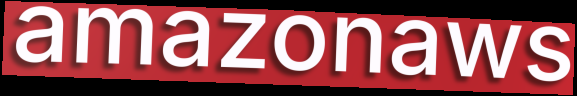
amazonaws